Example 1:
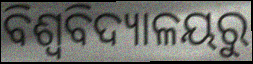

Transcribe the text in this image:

ବିଶ୍ୱବିଦ୍ୟାଳୟରୁ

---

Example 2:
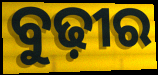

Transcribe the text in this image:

ବୁଢ଼ୀର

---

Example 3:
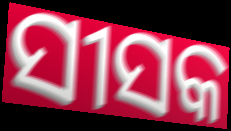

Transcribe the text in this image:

ସୀସକ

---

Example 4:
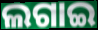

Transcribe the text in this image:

ଲଗାଇ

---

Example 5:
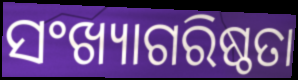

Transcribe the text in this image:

ସଂଖ୍ୟାଗରିଷ୍ଠତା